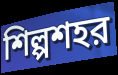
শিল্পশহর